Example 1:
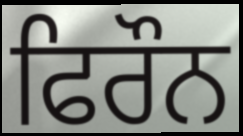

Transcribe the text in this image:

ਫਿਰੌਨ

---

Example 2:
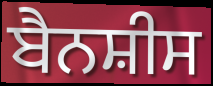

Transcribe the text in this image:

ਬੈਨਸ਼ੀਸ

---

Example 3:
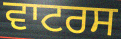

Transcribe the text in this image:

ਵਾਟਰਸ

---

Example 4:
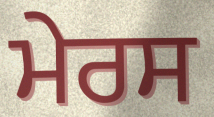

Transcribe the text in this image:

ਮੇਰਸ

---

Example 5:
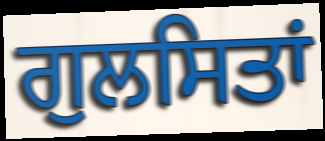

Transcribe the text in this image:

ਗੁਲਸਿਤਾਂ